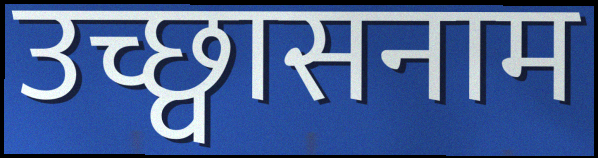
उच्छ्वासनाम